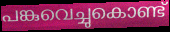
പങ്കുവെച്ചുകൊണ്ട്